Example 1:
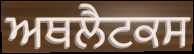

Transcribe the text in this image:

ਅਥਲੈਟਕਸ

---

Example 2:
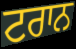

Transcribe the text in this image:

ਟਰਾਨ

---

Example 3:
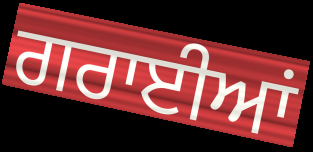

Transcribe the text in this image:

ਗਰਾਈਆਂ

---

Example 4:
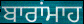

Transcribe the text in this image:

ਬਾਰਾਂਮਾਹ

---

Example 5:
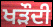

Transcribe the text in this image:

ਖੜੌਦੀ